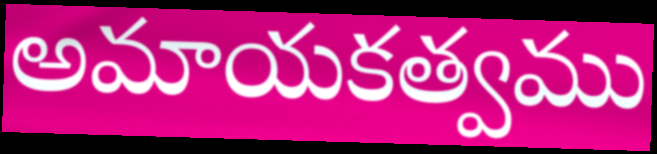
అమాయకత్వము